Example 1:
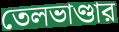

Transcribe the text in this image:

তেলভাণ্ডার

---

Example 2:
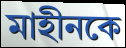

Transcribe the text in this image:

মাহীনকে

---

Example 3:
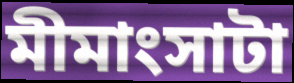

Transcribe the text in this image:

মীমাংসাটা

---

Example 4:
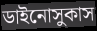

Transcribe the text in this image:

ডাইনোসুকাস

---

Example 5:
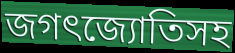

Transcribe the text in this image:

জগৎজ্যোতিসহ